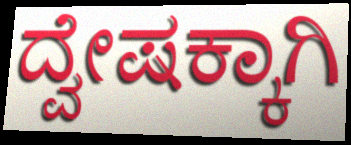
ದ್ವೇಷಕ್ಕಾಗಿ